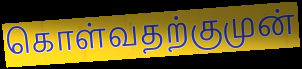
கொள்வதற்குமுன்